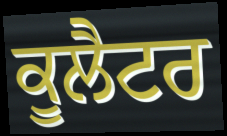
ਕੂਲੈਟਰ